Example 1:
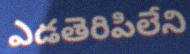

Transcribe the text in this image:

ఎడతెరిపిలేని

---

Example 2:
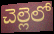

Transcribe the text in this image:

చెల్లెలో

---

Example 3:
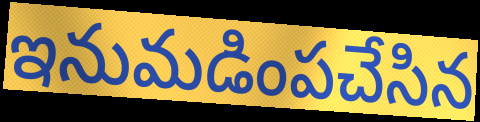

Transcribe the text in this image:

ఇనుమడింపచేసిన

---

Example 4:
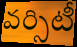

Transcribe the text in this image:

వర్సిటీ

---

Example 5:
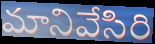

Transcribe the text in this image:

మానివేసిరి